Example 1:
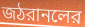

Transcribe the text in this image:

জঠরানলের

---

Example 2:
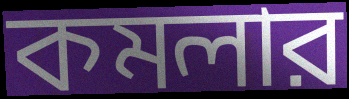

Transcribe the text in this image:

কমলার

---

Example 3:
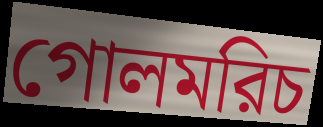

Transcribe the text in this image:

গোলমরিচ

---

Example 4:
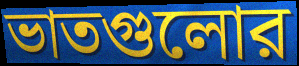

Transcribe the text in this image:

ভাতগুলোর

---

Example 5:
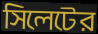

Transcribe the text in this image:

সিলেটের